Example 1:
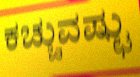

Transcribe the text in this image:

ಕಚ್ಚುವಷ್ಟು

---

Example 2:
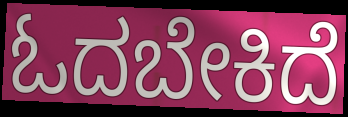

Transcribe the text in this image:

ಓದಬೇಕಿದೆ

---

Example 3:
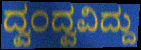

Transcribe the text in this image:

ದ್ವಂದ್ವವಿದ್ದು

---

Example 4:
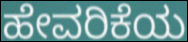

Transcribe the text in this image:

ಹೇವರಿಕೆಯ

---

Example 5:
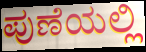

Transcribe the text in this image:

ಪುಣೆಯಲ್ಲಿ